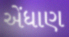
એંધાણ